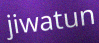
jiwatun